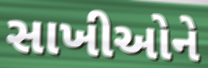
સાખીઓને